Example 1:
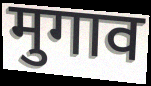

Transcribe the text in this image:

मुगाव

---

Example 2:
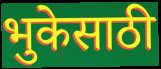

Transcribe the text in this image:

भुकेसाठी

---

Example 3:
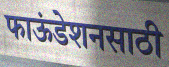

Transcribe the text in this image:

फाऊंडेशनसाठी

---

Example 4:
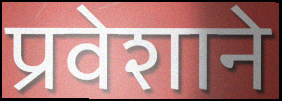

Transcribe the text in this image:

प्रवेशाने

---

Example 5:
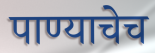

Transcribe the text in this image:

पाण्याचेच